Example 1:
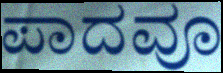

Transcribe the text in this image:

ಪಾದವೂ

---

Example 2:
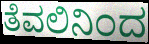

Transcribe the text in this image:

ತೆವಲಿನಿಂದ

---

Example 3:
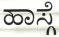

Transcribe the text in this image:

ಹಾಸ್ಗೆ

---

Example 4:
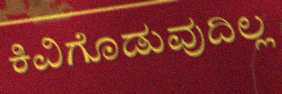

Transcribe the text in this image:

ಕಿವಿಗೊಡುವುದಿಲ್ಲ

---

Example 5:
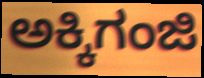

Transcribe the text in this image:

ಅಕ್ಕಿಗಂಜಿ